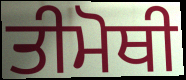
ਤੀਮੋਥੀ